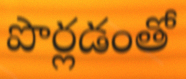
పొర్లడంతో